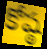
కోష్ఠ